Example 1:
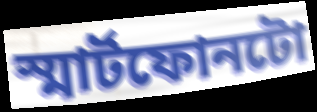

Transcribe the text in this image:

স্মাৰ্টফোনটো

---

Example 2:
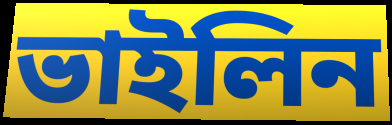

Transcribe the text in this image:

ভাইলিন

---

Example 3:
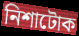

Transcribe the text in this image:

নিশাটোক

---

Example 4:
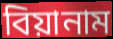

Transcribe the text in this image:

বিয়ানাম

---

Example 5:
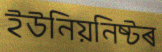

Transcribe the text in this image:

ইউনিয়নিষ্টৰ